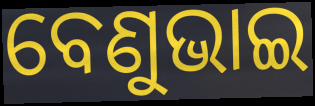
ବେଣୁଭାଇ